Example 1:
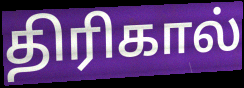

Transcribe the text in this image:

திரிகால்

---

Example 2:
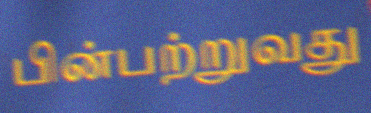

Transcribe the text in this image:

பின்பற்றுவது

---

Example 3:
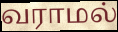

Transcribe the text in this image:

வராமல்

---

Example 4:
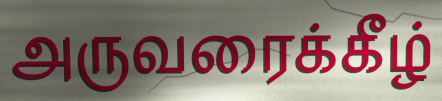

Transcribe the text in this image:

அருவரைக்கீழ்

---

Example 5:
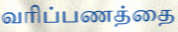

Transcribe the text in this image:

வரிப்பணத்தை